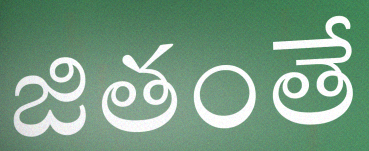
జితంతే